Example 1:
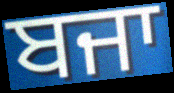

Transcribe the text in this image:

ਬਜਾ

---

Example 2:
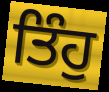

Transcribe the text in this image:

ਤਿੰਹੁ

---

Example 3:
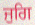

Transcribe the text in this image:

ਜੁਗਿ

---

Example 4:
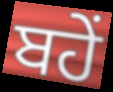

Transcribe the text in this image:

ਬਹੇਂ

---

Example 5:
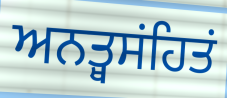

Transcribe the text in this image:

ਅਨਤ੍ਥਸਂਹਿਤਂ